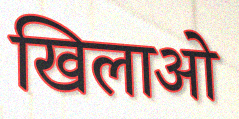
खिलाओ